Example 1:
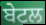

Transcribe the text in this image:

ਬੇਟਲ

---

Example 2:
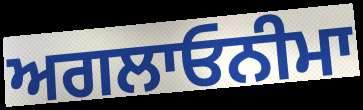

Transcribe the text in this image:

ਅਗਲਾਓਨੀਮਾ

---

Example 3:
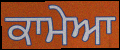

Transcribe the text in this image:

ਕਾਮੇਆ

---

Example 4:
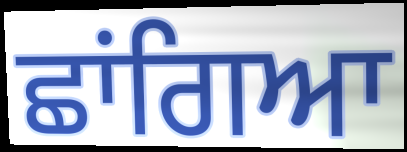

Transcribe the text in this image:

ਛਾਂਗਿਆ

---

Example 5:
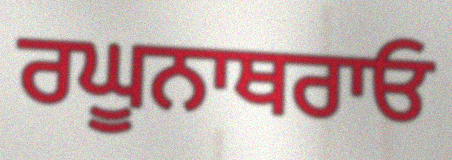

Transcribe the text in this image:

ਰਘੂਨਾਥਰਾਓ